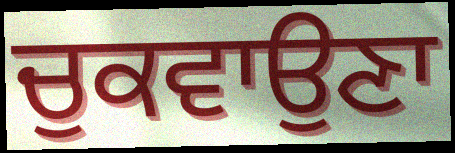
ਚੁਕਵਾਉਣਾ